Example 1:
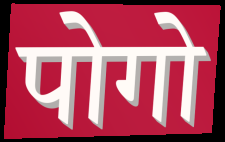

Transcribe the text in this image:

पोगो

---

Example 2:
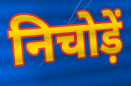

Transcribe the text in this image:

निचोड़ें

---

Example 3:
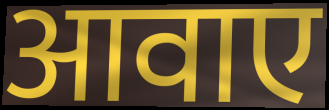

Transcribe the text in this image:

आवाए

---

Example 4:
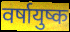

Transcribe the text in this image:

वर्षायुष्क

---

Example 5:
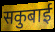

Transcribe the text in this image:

सकुबाई